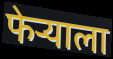
फेऱ्याला